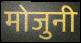
मोजुनी